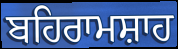
ਬਹਿਰਾਮਸ਼ਾਹ